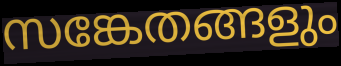
സങ്കേതങ്ങളും